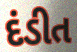
દંડીત